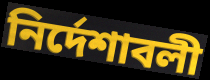
নির্দেশাবলী